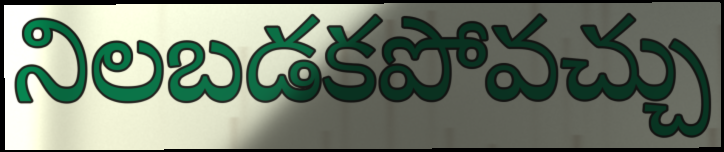
నిలబడకపోవచ్చు